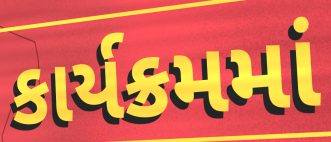
કાર્યક્રમમાં